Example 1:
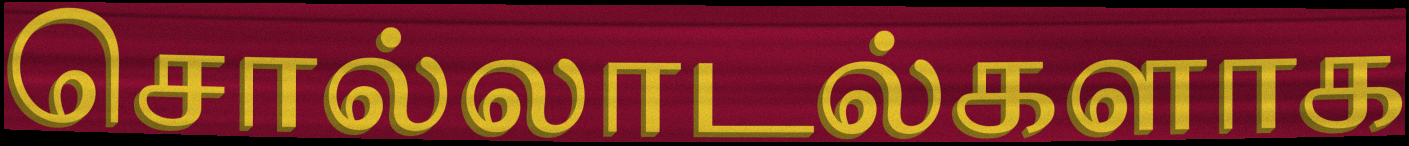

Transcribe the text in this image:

சொல்லாடல்களாக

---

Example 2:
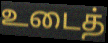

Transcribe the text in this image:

உடைத்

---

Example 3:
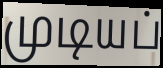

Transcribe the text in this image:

முடியப்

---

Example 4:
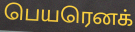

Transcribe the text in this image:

பெயரெனக்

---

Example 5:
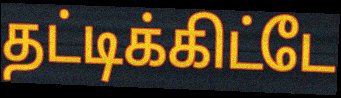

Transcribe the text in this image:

தட்டிக்கிட்டே